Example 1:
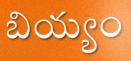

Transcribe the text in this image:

బియ్యం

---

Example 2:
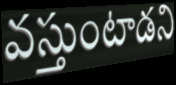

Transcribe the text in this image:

వస్తుంటాడని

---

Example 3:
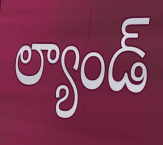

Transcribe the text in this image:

ల్యాండ్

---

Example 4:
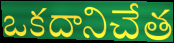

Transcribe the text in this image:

ఒకదానిచేత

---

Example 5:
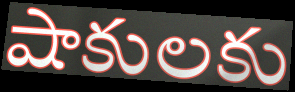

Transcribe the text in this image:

షాకులకు